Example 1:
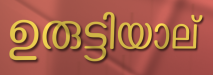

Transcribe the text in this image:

ഉരുട്ടിയാല്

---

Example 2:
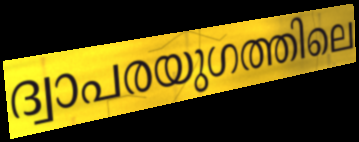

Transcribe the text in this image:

ദ്വാപരയുഗത്തിലെ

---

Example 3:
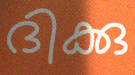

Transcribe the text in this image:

ദിക്കു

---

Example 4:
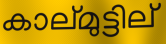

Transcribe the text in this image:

കാല്മുട്ടില്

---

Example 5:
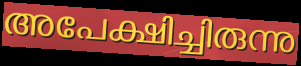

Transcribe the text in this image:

അപേക്ഷിച്ചിരുന്നു